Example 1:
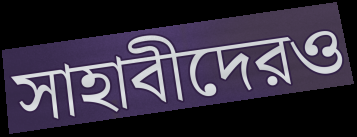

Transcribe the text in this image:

সাহাবীদেরও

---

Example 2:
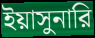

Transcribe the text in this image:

ইয়াসুনারি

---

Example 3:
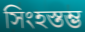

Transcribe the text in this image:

সিংহস্তম্ভ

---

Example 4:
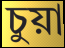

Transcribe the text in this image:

চুয়া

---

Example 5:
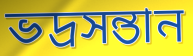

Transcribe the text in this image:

ভদ্রসন্তান